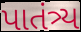
પાતંત્ર્ય